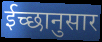
ईच्छानुसार